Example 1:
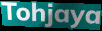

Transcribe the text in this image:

Tohjaya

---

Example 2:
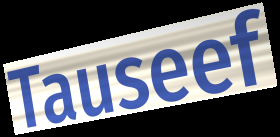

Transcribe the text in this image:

Tauseef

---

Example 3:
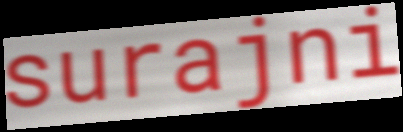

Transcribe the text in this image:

surajni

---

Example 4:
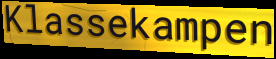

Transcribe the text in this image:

Klassekampen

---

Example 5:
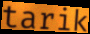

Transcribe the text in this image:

tarik